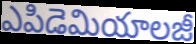
ఎపిడెమియాలజీ